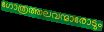
ഗോത്രത്തലവന്മാരോടും